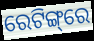
ରେଟିଙ୍ଗ୍‌ରେ